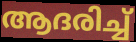
ആദരിച്ച്